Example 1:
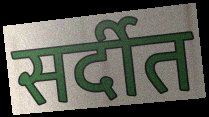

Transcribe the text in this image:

सर्दीत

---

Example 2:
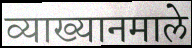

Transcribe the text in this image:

व्याख्यानमाले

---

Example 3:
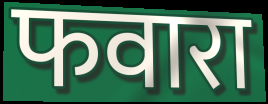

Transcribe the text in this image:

फवारा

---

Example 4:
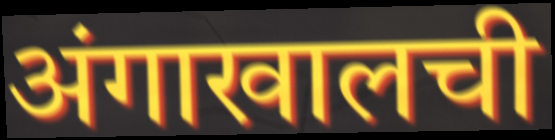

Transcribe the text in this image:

अंगाखालची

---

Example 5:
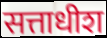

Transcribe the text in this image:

सत्ताधीश